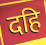
दहि